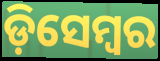
ଡ଼ିସେମ୍ୱର